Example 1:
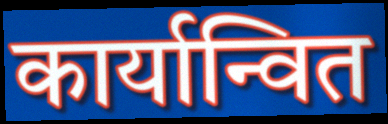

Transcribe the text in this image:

कार्यान्वित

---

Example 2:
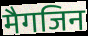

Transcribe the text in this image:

मैगजिन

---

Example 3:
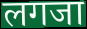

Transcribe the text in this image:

लगजा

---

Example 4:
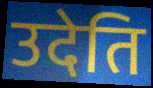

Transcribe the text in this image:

उदेति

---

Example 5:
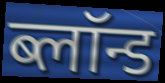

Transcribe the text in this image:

ब्लॉन्ड